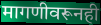
मागणीवरूनही